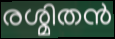
രശ്മിതൻ